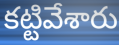
కట్టివేశారు